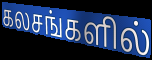
கலசங்களில்